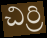
చిర్రి